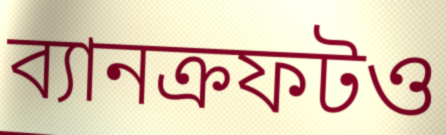
ব্যানক্রফটও